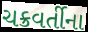
ચક્રવર્તીના